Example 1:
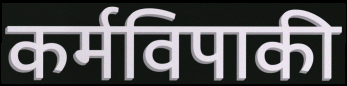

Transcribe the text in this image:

कर्मविपाकी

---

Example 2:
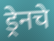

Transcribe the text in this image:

ड्रेनचे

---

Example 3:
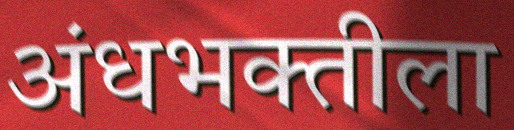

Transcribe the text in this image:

अंधभक्तीला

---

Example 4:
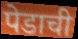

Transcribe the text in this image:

पेडाची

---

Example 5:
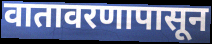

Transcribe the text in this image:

वातावरणापासून